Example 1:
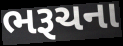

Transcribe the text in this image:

ભરૂચના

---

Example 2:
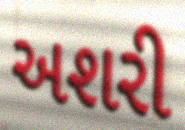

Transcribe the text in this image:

અશરી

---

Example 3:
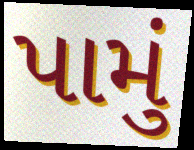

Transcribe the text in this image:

પામું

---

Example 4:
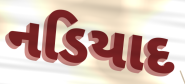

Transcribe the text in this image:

નડિયાદ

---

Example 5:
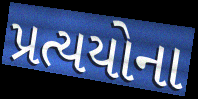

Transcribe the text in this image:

પ્રત્યયોના